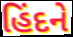
હિંદને